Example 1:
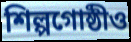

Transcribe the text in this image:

শিল্পগোষ্ঠীও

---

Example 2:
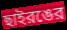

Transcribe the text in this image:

ছাইরঙের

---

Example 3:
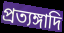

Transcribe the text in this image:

প্রত্যঙ্গাদি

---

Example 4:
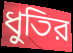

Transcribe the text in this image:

ধুতির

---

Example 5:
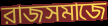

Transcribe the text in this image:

রাজসমাজে